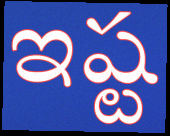
ఇష్ట